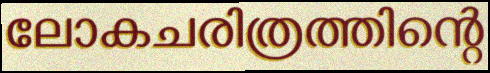
ലോകചരിത്രത്തിന്റെ